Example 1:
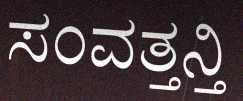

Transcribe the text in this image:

ಸಂವತ್ತನ್ತಿ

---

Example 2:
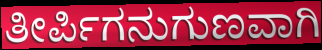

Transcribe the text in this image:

ತೀರ್ಪಿಗನುಗುಣವಾಗಿ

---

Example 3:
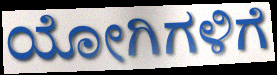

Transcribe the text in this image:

ಯೋಗಿಗಳಿಗೆ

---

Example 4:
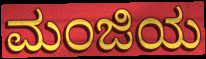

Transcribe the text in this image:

ಮಂಜಿಯ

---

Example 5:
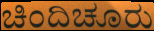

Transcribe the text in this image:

ಚಿಂದಿಚೂರು